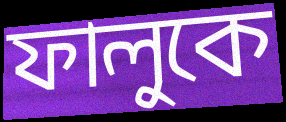
ফালুকে